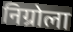
निग्रोला